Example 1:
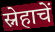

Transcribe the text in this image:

स्नेहाचें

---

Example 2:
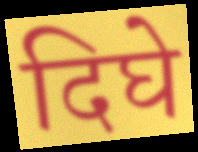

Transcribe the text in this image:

दिघे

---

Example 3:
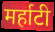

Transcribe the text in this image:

मर्हाटी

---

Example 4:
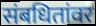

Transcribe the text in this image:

संबधितांवर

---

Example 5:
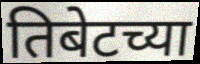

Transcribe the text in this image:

तिबेटच्या